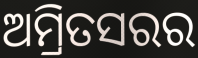
ଅମ୍ରିତସରର